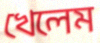
খেলেম